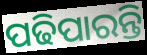
ପଢିପାରନ୍ତି